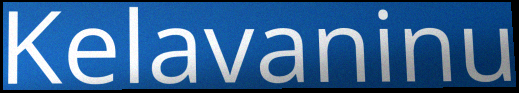
Kelavaninu